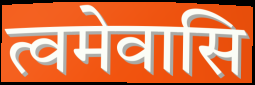
त्वमेवासि